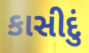
કાસીદું